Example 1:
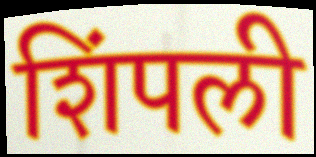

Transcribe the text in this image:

शिंपली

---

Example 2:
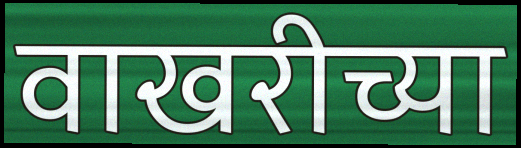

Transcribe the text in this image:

वाखरीच्या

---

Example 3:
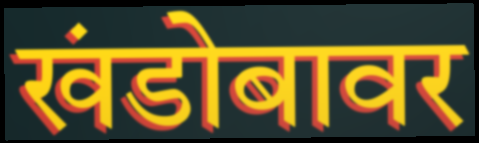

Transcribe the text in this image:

खंडोबावर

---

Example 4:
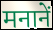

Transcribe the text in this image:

मनानें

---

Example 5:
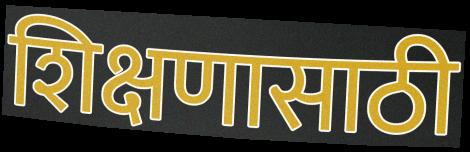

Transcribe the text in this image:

शिक्षणासाठी